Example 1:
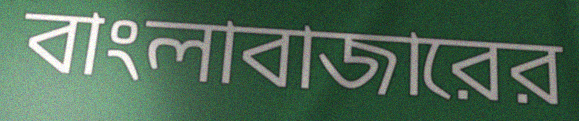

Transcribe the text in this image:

বাংলাবাজারের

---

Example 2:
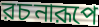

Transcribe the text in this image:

রচনারূপে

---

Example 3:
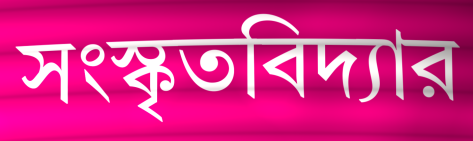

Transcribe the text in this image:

সংস্কৃতবিদ্যার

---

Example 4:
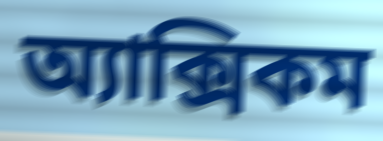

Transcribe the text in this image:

অ্যাক্সিকম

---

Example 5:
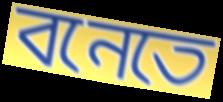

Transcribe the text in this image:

বনেতে